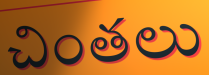
చింతలు